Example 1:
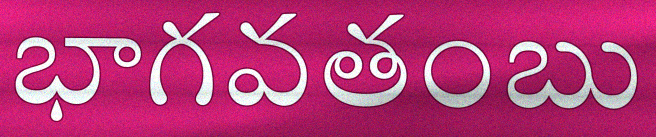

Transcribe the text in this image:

భాగవతంబు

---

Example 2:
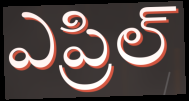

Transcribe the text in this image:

ఎప్రిల్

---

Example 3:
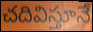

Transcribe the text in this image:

చదివిస్తూనే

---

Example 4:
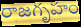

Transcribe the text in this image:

రాజగృహం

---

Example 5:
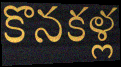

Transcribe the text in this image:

కొనకళ్ల